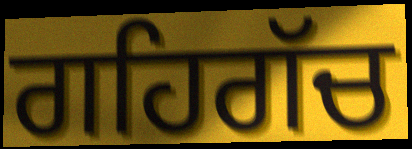
ਗਹਿਗੱਚ